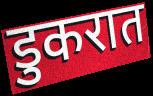
डुकरात